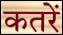
कतरें